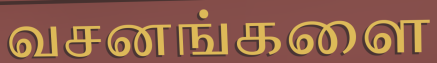
வசனங்களை